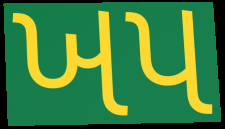
ખપ